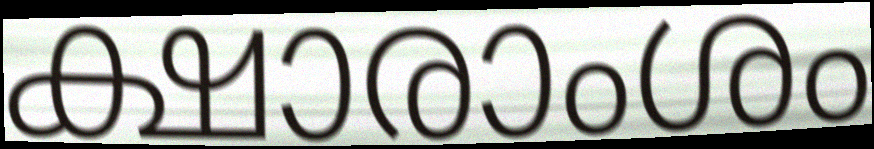
ക്ഷാരാംശം